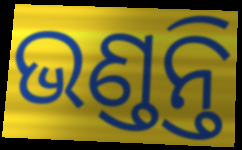
ଭଣ୍ଡନ୍ତି